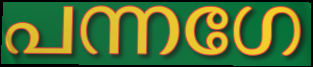
പന്നഗേ